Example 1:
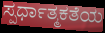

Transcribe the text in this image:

ಸ್ಪರ್ಧಾತ್ಮಕತೆಯ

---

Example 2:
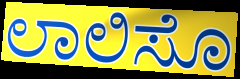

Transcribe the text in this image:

ಲಾಲಿಸೊ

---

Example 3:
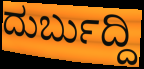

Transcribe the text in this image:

ದುರ್ಬುದ್ದಿ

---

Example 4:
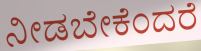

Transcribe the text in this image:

ನೀಡಬೇಕೆಂದರೆ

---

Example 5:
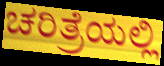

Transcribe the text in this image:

ಚರಿತ್ರೆಯಲ್ಲಿ